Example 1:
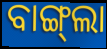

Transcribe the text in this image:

ବାଙ୍ଗ୍‍ଲା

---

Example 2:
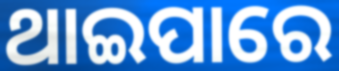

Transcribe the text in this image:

ଥାଇପାରେ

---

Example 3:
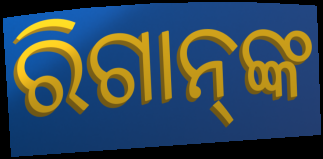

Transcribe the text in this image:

ରିଗାନ୍‌ଙ୍କ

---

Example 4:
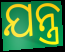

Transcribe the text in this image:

ଯନ୍ତ୍ର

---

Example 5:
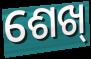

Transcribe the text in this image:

ଶେଖ୍